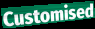
Customised